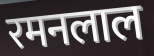
रमनलाल